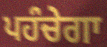
ਪਹੰਚੇਗਾ